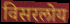
विसरलोय